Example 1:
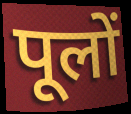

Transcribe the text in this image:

पूलों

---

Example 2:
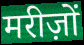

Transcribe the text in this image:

मरीज़ों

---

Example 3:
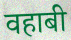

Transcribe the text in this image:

वहाबी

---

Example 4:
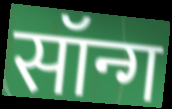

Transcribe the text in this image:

सॉन्ग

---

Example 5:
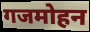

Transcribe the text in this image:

गजमोहन